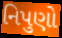
નિપુણો